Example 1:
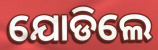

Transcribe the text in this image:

ଯୋଡିଲେ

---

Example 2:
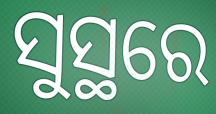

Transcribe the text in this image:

ସୁସ୍ଥରେ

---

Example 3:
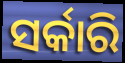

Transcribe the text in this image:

ସର୍କାରି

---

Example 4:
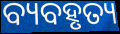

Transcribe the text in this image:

ବ୍ୟବହୃତ୍ୟ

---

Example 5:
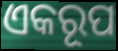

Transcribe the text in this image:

ଏକରୂପ